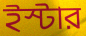
ইস্টার